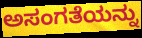
ಅಸಂಗತೆಯನ್ನು